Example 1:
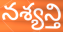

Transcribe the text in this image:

నశ్యన్తి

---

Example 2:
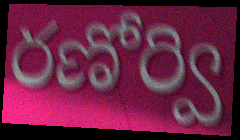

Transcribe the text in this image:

రణోర్వి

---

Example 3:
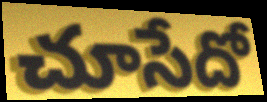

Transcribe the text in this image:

చూసేదో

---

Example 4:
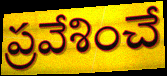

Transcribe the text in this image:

ప్రవేశించే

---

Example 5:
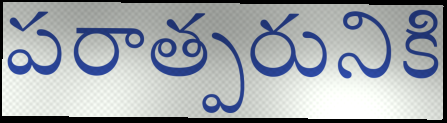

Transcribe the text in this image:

పరాత్పరునికి